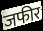
जफीर